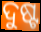
ଦୁଷ୍ଟ